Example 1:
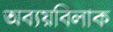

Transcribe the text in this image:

অব্যয়বিলাক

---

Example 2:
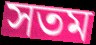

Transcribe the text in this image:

সতম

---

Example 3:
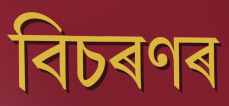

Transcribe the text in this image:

বিচৰণৰ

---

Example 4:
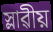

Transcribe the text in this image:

স্লাৱীয়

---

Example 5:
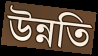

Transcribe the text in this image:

উন্নতি